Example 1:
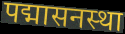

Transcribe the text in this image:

पद्मासनस्था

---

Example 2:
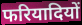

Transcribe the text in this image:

फरियादियों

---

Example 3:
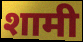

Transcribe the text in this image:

शामी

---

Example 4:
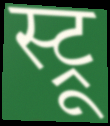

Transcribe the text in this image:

स्ट्रू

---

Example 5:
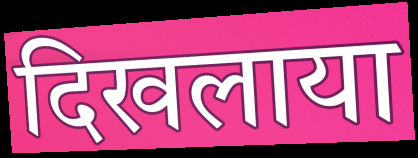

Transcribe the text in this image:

दिखलाया